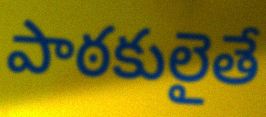
పాఠకులైతే